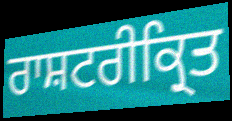
ਰਾਸ਼ਟਰੀਕ੍ਰਿਤ